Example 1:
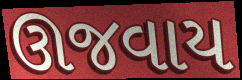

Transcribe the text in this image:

ઊજવાય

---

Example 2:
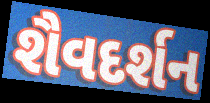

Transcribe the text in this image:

શૈવદર્શન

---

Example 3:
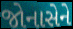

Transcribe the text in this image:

જોનાસેને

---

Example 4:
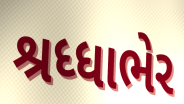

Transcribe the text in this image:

શ્રધ્ધાભેર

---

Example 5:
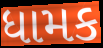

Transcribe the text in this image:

ધામક